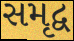
સમૃદ્વ